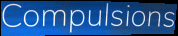
Compulsions